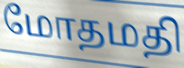
மோதமதி